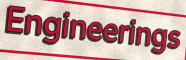
Engineerings